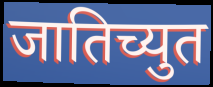
जातिच्युत